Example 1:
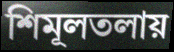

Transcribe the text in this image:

শিমূলতলায়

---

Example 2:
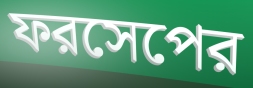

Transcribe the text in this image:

ফরসেপের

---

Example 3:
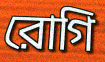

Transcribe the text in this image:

রোগি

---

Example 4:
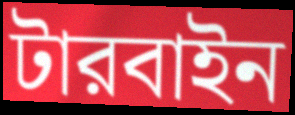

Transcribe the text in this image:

টারবাইন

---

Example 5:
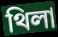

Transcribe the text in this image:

থিলা